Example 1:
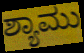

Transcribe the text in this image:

ಶ್ಯಾಮು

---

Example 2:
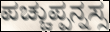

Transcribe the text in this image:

ಪಚ್ಚುಪ್ಪನ್ನಸ್ಸ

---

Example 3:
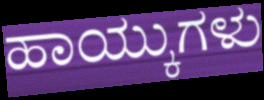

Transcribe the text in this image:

ಹಾಯ್ಕುಗಳು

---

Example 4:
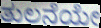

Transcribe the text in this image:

ತುಲನೆಯೇ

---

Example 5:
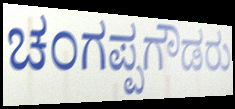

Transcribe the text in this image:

ಚಂಗಪ್ಪಗೌಡರು